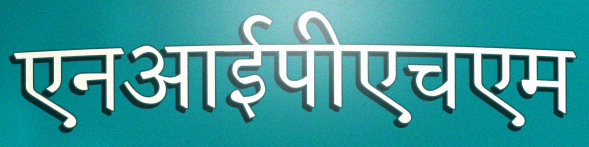
एनआईपीएचएम